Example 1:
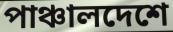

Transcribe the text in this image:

পাঞ্চালদেশে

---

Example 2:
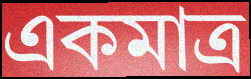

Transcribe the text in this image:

একমাত্র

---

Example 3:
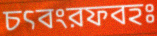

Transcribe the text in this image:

চৎবংরফবহঃ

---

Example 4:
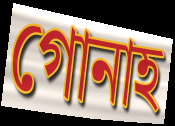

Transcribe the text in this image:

গোনাহ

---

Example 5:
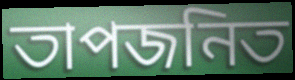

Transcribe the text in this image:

তাপজনিত